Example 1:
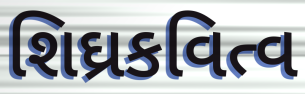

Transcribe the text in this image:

શિઘ્રકવિત્વ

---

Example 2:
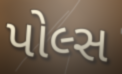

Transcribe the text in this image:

પોલ્સ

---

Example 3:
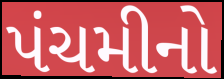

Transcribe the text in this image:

પંચમીનો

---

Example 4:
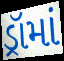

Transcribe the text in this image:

ડ્રૉમાં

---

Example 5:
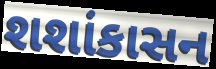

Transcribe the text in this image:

શશાંકાસન